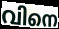
വിനെ